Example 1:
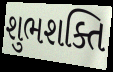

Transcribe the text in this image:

શુભશક્તિ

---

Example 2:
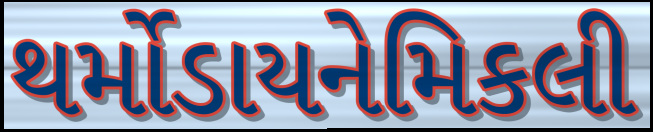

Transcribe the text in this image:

થર્મોડાયનેમિકલી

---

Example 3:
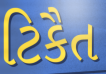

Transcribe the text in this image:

ટિકૈત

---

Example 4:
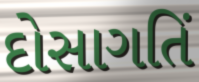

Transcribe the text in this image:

દોસાગતિં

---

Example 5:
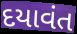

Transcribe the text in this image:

દયાવંત